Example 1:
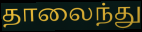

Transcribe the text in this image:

தாலைந்து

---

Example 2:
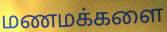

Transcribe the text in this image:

மணமக்களை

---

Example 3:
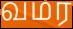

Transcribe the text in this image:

வமர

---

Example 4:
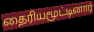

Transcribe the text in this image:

தைரியமூட்டினார்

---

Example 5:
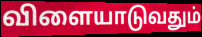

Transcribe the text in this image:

விளையாடுவதும்